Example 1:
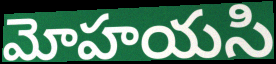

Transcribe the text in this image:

మోహయసి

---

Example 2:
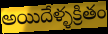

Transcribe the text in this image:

అయిదేళ్ళక్రితం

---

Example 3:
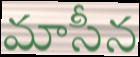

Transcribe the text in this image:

మాసీన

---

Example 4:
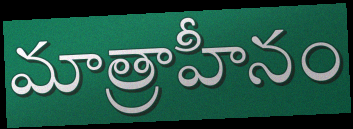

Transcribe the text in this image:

మాత్రాహీనం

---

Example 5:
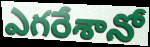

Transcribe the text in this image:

ఎగరేశానో